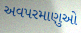
અવપરમાણુઓ